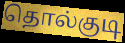
தொல்குடி